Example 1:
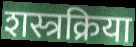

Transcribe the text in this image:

शस्त्रक्रिया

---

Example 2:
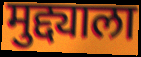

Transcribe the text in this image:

मुद्द्याला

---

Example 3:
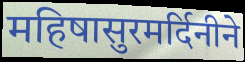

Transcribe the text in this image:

महिषासुरमर्दिनीने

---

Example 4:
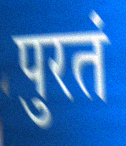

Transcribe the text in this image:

पुरतं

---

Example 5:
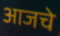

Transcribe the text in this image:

आजचे